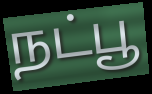
நட்பூ